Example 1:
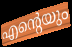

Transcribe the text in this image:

എന്റെയും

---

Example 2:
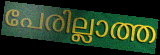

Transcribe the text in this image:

പേരില്ലാത്ത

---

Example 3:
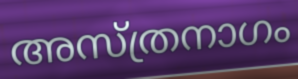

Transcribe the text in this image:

അസ്ത്രനാഗം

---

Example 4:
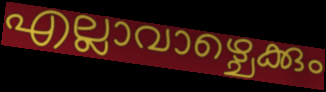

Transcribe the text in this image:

എല്ലാവാഴ്ചെക്കും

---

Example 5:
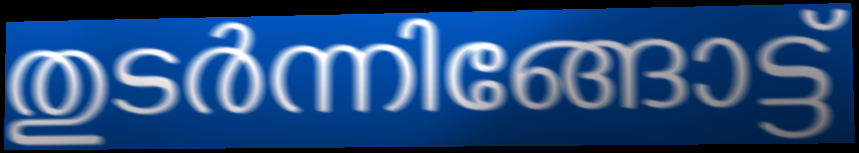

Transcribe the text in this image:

തുടർന്നിങ്ങോട്ട്